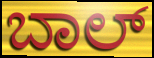
ಬಾಲ್